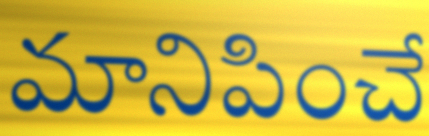
మానిపించే